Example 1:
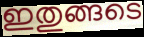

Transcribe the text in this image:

ഇതുങ്ങടെ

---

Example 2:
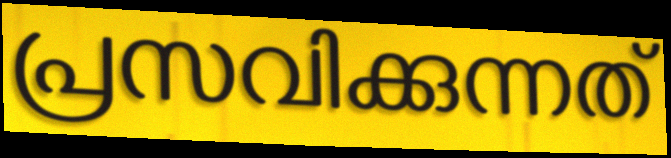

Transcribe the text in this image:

പ്രസവിക്കുന്നത്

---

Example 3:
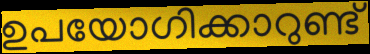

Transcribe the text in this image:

ഉപയോഗിക്കാറുണ്ട്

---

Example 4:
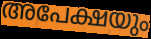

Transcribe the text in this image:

അപേക്ഷയും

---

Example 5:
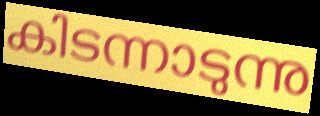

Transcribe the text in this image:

കിടന്നാടുന്നു